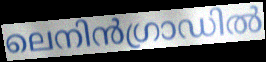
ലെനിൻഗ്രാഡിൽ